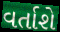
વર્તાશે